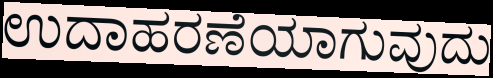
ಉದಾಹರಣೆಯಾಗುವುದು